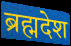
ब्रह्मदेश